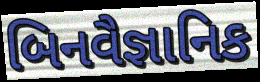
બિનવૈજ્ઞાનિક